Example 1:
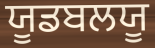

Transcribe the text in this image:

ਯੂਡਬਲਯੂ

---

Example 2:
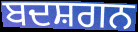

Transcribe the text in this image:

ਬਦਸ਼ਗਨ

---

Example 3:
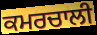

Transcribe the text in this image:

ਕਮਰਚਾਲੀ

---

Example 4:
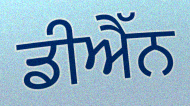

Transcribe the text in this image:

ਡੀਐੱਨ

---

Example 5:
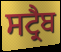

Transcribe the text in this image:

ਸਟ੍ਰੈਬ